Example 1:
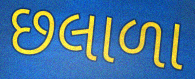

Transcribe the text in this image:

છલાળા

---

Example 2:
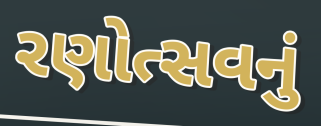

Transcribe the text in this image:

રણોત્સવનું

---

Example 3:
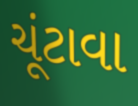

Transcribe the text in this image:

ચૂંટાવા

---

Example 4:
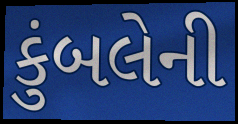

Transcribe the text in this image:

કુંબલેની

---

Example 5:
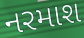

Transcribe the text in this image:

નરમાશ